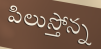
పిలుస్తోన్న